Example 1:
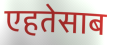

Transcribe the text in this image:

एहतेसाब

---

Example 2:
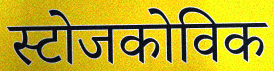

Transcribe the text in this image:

स्टोजकोविक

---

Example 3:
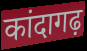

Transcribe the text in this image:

कांदागढ़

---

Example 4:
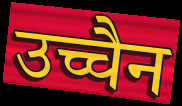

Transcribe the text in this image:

उच्चैन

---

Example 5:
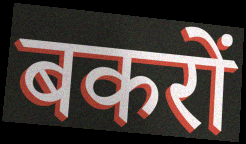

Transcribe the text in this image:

बकरों